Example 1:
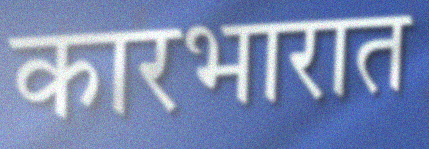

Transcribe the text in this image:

कारभारात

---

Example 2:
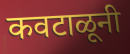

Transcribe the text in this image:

कवटाळूनी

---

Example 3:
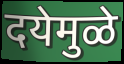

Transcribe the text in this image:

दयेमुळे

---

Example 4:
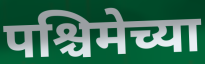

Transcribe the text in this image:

पश्चिमेच्या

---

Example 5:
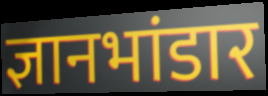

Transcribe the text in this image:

ज्ञानभांडार